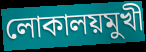
লোকালয়মুখী